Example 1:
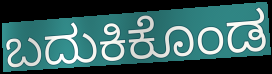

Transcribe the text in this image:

ಬದುಕಿಕೊಂಡ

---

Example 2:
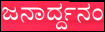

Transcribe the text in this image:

ಜನಾರ್ದ್ದನಂ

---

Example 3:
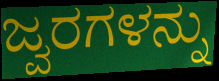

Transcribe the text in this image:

ಜ್ವರಗಳನ್ನು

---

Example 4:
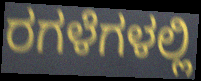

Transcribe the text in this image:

ರಗಳೆಗಳಲ್ಲಿ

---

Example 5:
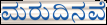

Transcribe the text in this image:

ಮರುದಿನವೆ